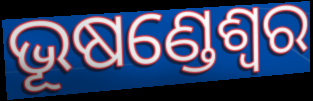
ଭୂଷଣ୍ଡେଶ୍ଵର